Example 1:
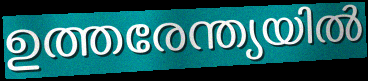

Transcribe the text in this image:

ഉത്തരേന്ത്യയിൽ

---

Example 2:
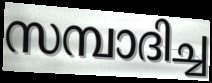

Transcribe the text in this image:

സമ്പാദിച്ച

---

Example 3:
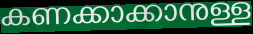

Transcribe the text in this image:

കണക്കാക്കാനുള്ള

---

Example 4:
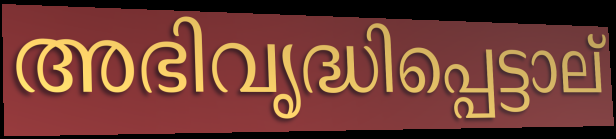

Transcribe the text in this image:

അഭിവൃദ്ധിപ്പെട്ടാല്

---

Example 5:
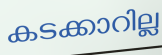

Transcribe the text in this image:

കടക്കാറില്ല